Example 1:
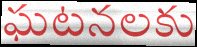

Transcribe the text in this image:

ఘటనలకు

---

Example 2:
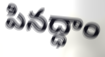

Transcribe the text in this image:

పినద్ధాం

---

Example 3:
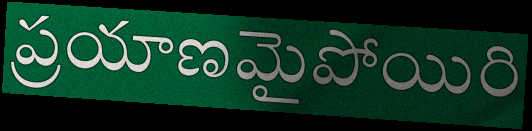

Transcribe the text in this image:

ప్రయాణమైపోయిరి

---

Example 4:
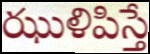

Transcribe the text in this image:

ఝుళిపిస్తే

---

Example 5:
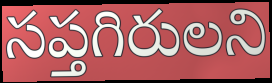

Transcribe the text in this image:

సప్తగిరులని